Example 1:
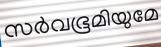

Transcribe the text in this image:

സർവഭൂമിയുമേ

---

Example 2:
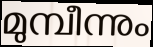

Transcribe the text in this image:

മുമ്പീന്നും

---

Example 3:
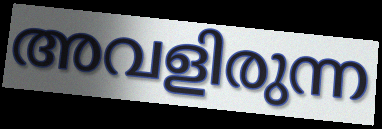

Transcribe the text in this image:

അവളിരുന്ന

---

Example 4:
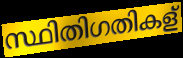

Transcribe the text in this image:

സ്ഥിതിഗതികള്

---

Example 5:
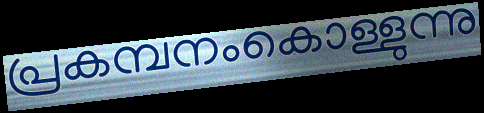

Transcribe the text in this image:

പ്രകമ്പനംകൊള്ളുന്നു